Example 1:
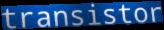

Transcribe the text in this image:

transistor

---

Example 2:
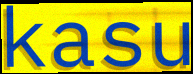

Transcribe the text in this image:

kasu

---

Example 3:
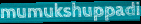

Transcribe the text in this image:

mumukshuppadi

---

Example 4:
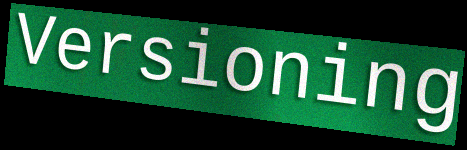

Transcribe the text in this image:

Versioning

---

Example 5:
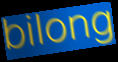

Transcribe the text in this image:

bilong